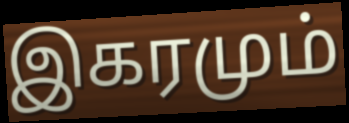
இகரமும்